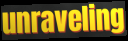
unraveling